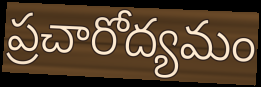
ప్రచారోద్యమం